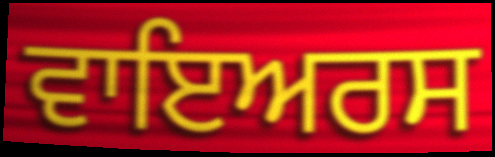
ਵਾਇਅਰਸ